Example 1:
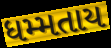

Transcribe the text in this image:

ધમ્મતાય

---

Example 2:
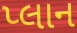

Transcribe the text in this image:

પ્લાન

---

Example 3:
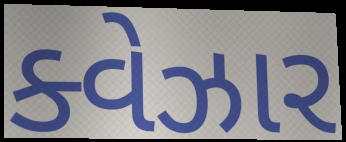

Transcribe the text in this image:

ક્વેઝાર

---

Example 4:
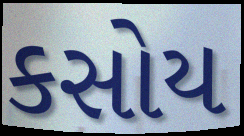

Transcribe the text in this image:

કસોય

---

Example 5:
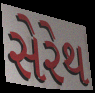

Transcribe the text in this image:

સેરેથ